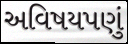
અવિષયપણું